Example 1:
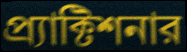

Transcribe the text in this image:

প্র্যাক্টিশনার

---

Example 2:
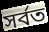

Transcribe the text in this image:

সর্বত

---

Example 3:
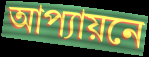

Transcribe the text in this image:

আপ্যায়নে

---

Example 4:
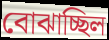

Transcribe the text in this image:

বোঝাচ্ছিল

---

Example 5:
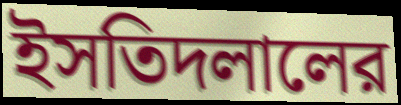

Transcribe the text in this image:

ইসতিদলালের